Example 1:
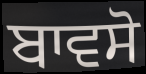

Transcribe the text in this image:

ਬਾਵਸੋ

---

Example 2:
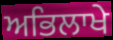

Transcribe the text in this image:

ਅਭਿਲਾਖੇ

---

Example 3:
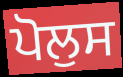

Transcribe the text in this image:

ਪੋਲੁਸ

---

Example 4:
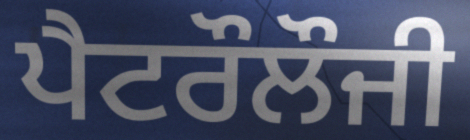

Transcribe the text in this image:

ਪੈਟਰੌਲੌਜੀ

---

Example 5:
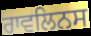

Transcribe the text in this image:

ਰਾਵਲਿਨਸ